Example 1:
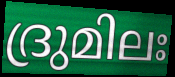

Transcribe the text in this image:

ദ്രുമിലഃ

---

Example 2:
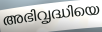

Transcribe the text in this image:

അഭിവൃദ്ധിയെ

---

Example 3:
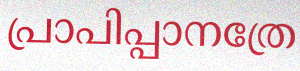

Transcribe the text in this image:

പ്രാപിപ്പാനത്രേ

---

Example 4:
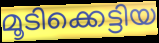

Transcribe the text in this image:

മൂടിക്കെട്ടിയ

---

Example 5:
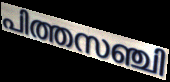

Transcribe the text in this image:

പിത്തസഞ്ചി